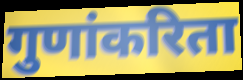
गुणांकरिता